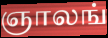
ஞாலங்